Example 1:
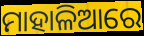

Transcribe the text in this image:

ମାହାଳିଆରେ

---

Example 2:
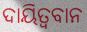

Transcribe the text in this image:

ଦାୟିତ୍ଵବାନ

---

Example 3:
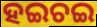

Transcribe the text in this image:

ହଇଚଇ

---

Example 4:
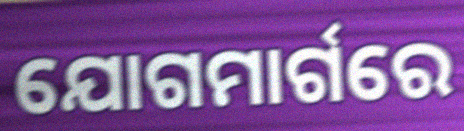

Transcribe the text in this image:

ଯୋଗମାର୍ଗରେ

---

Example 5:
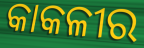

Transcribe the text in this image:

କାକଳୀର